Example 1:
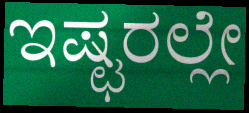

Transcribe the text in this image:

ಇಷ್ಟರಲ್ಲೇ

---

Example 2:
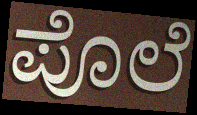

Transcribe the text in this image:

ಪೊಲೆ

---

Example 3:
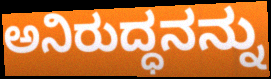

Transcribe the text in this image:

ಅನಿರುದ್ಧನನ್ನು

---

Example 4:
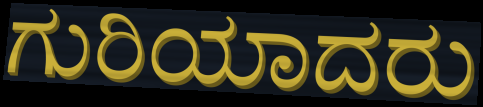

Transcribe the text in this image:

ಗುರಿಯಾದರು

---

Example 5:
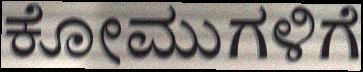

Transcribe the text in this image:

ಕೋಮುಗಳಿಗೆ